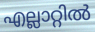
എല്ലാറ്റിൽ